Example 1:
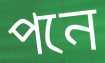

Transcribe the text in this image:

পনে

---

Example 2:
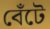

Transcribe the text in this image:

বেঁটে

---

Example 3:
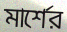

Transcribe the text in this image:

মার্শের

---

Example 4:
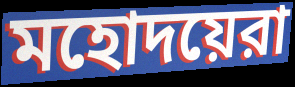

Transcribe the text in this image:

মহোদয়েরা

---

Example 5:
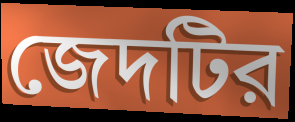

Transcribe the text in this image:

জেদটির